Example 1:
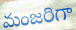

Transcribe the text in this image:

మంజరిగా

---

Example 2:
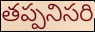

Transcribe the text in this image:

తప్పనిసరి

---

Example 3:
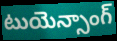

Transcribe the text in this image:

టుయెన్సాంగ్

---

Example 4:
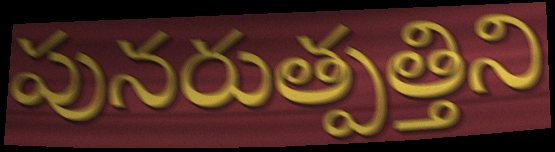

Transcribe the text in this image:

పునరుత్పత్తిని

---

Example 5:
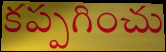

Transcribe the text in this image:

కప్పగించు